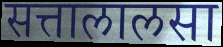
सत्तालालसा